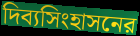
দিব্যসিংহাসনের